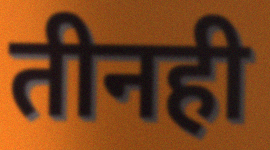
तीनही